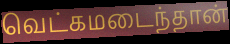
வெட்கமடைந்தான்